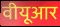
वीयूआर